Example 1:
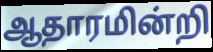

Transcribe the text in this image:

ஆதாரமின்றி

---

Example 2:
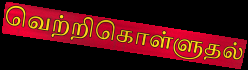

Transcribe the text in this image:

வெற்றிகொள்ளுதல்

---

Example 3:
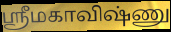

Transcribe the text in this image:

ஸ்ரீமகாவிஷ்ணு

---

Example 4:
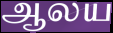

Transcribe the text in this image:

ஆலய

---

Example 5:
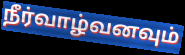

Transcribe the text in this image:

நீர்வாழ்வனவும்